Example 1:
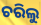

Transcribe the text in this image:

ଚରିଲୁ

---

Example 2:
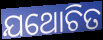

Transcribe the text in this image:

ଯଥୋଚିତ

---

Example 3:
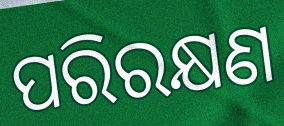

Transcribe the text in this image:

ପରିରକ୍ଷଣ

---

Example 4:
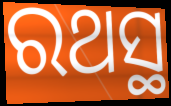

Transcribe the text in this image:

ରଥସ୍ଥ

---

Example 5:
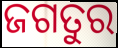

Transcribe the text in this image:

ଜଗତୁର